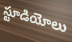
స్టూడియోలు